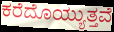
ಕರೆದೊಯ್ಯುತ್ತವೆ